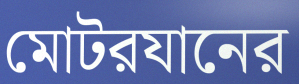
মোটরযানের